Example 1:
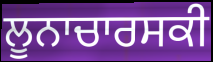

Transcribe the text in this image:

ਲੂਨਾਚਾਰਸਕੀ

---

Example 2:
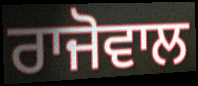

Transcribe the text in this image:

ਰਾਜੋਵਾਲ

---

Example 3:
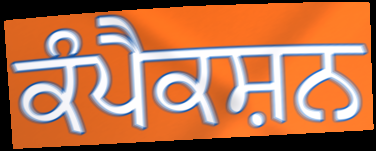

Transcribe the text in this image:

ਕੰਪੈਕਸ਼ਨ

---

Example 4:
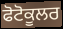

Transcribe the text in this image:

ਫੋਟੋਕੂਲਰ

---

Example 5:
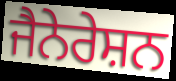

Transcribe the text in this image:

ਜੈਨੇਰੇਸ਼ਨ